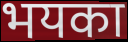
भयका